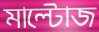
মাল্টোজ